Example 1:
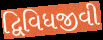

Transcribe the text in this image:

દ્વિવિધજીવી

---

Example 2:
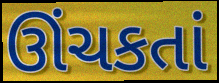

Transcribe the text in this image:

ઊંચકતાં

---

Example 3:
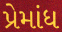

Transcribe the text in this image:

પ્રેમાંધ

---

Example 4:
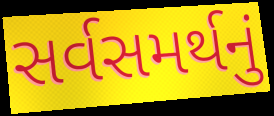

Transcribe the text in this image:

સર્વસમર્થનું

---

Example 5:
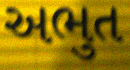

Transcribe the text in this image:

અભુત